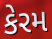
કેરમ